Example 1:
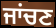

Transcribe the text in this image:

ਜਾਂਚਣ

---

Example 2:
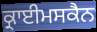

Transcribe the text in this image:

ਕ੍ਰਾਈਮਸਕੈਨ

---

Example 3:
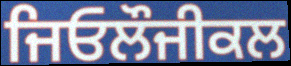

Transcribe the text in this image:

ਜਿਓਲੌਜੀਕਲ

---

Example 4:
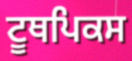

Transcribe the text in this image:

ਟੂਥਪਿਕਸ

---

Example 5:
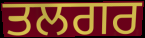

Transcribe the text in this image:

ਤਲਗਰ